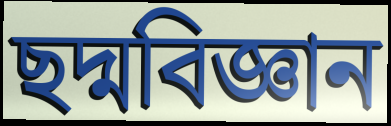
ছদ্মবিজ্ঞান